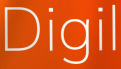
Digil